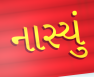
નાસ્યું